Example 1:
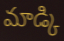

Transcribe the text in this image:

మాడ్కి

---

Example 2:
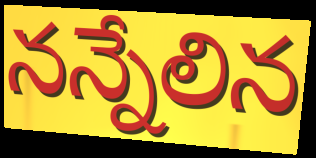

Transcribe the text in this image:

నన్నేలిన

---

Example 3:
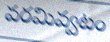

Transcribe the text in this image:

వరమివ్వటం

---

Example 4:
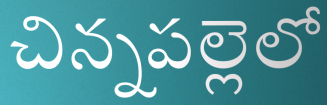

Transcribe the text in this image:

చిన్నపల్లెలో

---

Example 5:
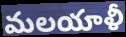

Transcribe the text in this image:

మలయాళీ